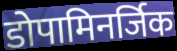
डोपामिनर्जिक